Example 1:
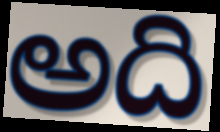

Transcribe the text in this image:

అది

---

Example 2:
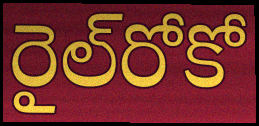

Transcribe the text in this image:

రైల్‌రోకో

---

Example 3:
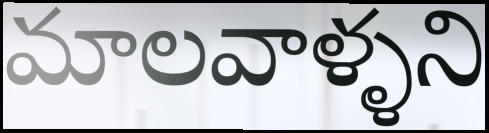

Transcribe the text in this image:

మాలవాళ్ళని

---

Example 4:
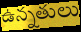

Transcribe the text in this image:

ఉన్నతులు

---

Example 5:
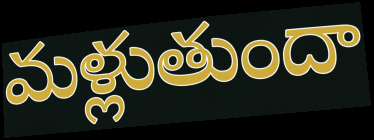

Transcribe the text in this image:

మళ్లుతుందా